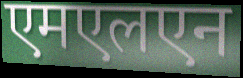
एमएलएन